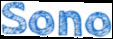
Sono